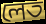
লেত